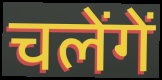
चलेंगें